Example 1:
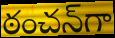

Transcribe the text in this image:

ఠంచన్‌గా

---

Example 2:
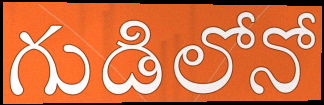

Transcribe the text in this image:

గుడిలోనో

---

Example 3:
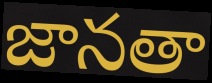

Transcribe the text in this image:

జానతా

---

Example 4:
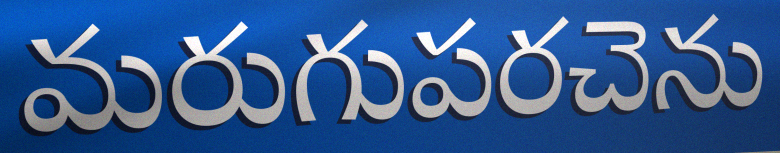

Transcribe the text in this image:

మరుగుపరచెను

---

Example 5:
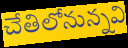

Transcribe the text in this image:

చేతిలోనున్నవి